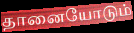
தானையோடும்